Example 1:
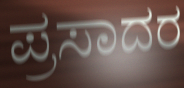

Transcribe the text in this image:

ಪ್ರಸಾದರ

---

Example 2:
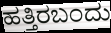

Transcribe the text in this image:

ಹತ್ತಿರಬಂದು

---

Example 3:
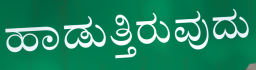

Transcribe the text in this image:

ಹಾಡುತ್ತಿರುವುದು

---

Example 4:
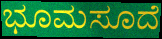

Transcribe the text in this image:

ಭೂಮಸೂದೆ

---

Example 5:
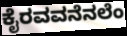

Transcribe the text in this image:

ಕೈರವವನೆನಲೆಂ